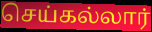
செய்கல்லார்